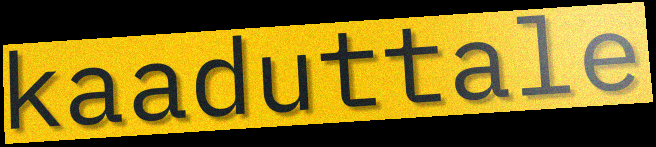
kaaduttale